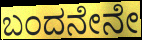
ಬಂದನೇನೇ